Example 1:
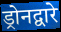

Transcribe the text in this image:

ड्रोनद्वारे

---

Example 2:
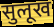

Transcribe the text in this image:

सुलूख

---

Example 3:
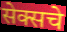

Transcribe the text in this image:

सेक्सचे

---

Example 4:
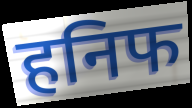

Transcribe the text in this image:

हनिफ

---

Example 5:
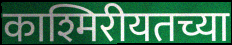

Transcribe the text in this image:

काश्मिरीयतच्या